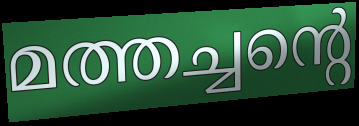
മത്തച്ചന്റെ